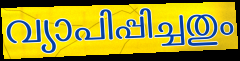
വ്യാപിപ്പിച്ചതും